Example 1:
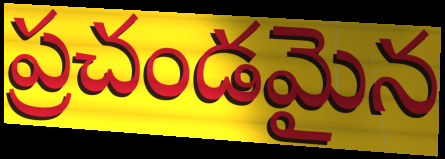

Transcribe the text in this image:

ప్రచండమైన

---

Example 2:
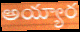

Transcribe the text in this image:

అయ్యార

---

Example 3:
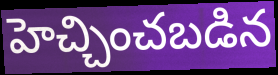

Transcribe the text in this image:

హెచ్చించబడిన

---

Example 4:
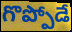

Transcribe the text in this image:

గొప్పోడే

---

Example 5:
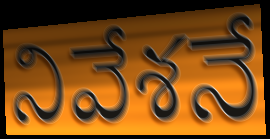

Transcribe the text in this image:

నివేశనే